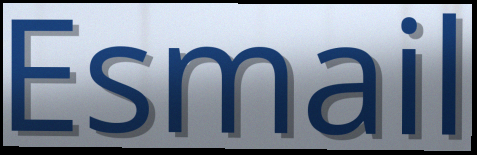
Esmail